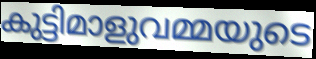
കുട്ടിമാളുവമ്മയുടെ